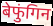
बेफुंगिन